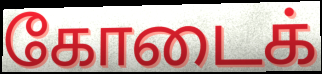
கோடைக்